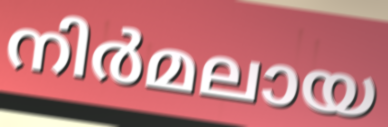
നിർമലായ